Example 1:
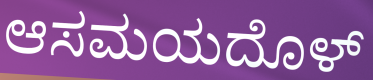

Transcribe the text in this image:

ಆಸಮಯದೊಳ್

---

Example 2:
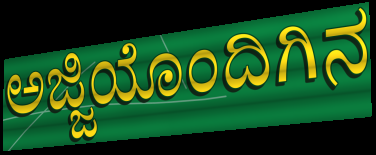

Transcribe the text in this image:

ಅಜ್ಜಿಯೊಂದಿಗಿನ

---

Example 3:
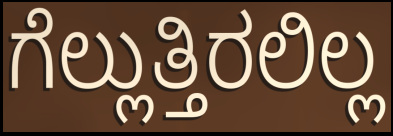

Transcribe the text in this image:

ಗೆಲ್ಲುತ್ತಿರಲಿಲ್ಲ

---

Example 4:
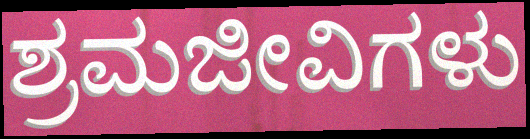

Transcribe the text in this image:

ಶ್ರಮಜೀವಿಗಳು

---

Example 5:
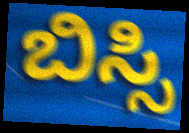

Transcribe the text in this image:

ಬಿಸ್ಸಿ